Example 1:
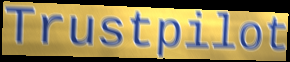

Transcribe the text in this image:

Trustpilot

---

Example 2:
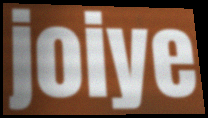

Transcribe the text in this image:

joiye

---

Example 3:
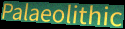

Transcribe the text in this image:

Palaeolithic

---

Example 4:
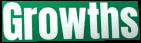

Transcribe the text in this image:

Growths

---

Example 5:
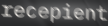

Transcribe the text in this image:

recepient